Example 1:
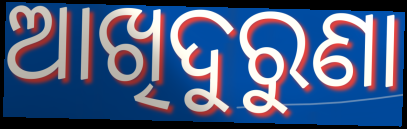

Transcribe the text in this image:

ଆଖିଦୁରୁଣା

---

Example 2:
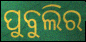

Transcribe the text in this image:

ପୁବୁଲିର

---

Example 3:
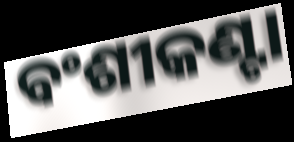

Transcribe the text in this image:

ବଂଶୀକଣ୍ଟା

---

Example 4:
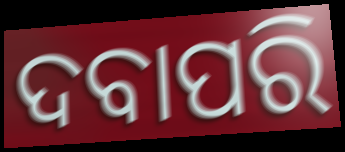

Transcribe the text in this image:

ଦବାପରି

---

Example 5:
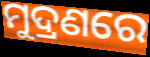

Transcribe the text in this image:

ମୁଦ୍ରଣରେ